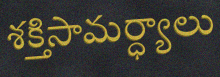
శక్తిసామర్ధ్యాలు